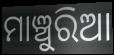
ମାଞ୍ଚୁରିଆ